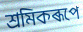
শ্ৰমিকৰূপে